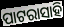
ପାଟରାସାହି